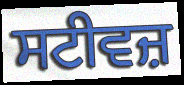
ਸਟੀਵਜ਼